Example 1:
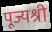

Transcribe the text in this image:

पूज्यश्री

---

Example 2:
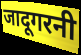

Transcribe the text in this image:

जादूगरनी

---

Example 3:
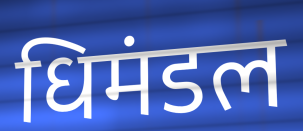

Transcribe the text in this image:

धिमंडल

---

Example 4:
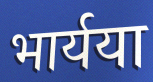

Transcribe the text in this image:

भार्यया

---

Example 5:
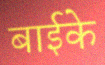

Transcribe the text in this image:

बाईके